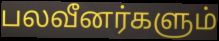
பலவீனர்களும்